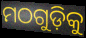
ମଠଗୁଡ଼ିକୁ